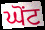
ਘੋਂਟ